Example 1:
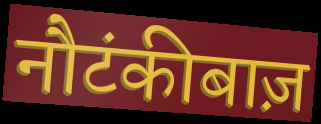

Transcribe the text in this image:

नौटंकीबाज़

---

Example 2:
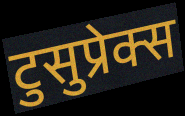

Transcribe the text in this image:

टुसुप्रेक्स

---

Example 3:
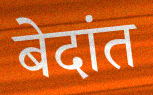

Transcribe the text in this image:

बेदांत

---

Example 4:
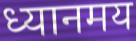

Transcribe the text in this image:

ध्यानमय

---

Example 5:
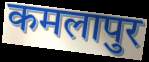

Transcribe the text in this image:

कमलापुर